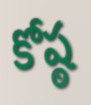
కోష్ఠ